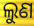
ଲୁଣ